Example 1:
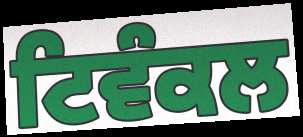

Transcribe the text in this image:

ਟਿਵੰਕਲ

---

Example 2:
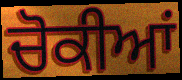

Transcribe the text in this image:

ਚੋਕੀਆਂ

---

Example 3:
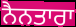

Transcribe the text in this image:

ਨੈਨਤਾਰਾ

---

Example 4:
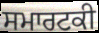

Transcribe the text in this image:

ਸਮਾਰਟਕੀ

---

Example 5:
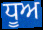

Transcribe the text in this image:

ਧੂਅ